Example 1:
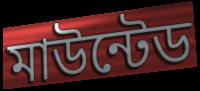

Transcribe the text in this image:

মাউন্টেড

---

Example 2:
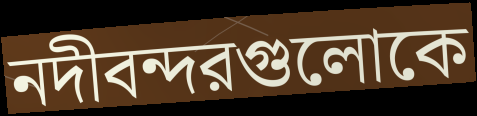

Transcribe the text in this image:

নদীবন্দরগুলোকে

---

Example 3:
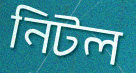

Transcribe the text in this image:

নিটল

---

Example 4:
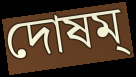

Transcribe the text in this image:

দোষম্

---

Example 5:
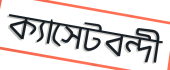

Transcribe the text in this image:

ক্যাসেটবন্দী